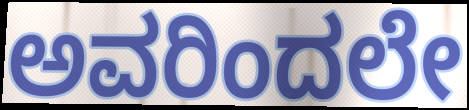
ಅವರಿಂದಲೇ